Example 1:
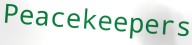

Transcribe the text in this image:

Peacekeepers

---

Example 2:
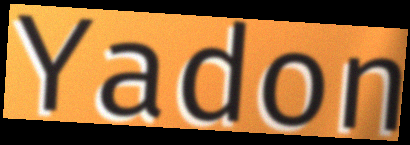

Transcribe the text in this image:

Yadon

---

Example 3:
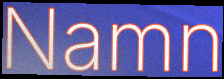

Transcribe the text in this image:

Namn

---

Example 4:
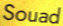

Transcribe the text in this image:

Souad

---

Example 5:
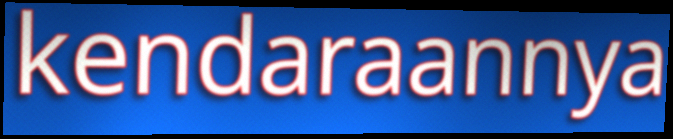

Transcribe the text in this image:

kendaraannya